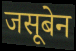
जसूबेन